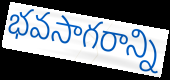
భవసాగరాన్ని